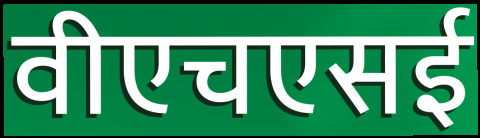
वीएचएसई